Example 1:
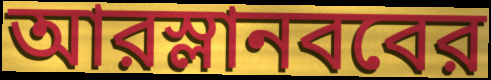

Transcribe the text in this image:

আরস্লানববের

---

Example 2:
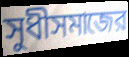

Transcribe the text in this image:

সুধীসমাজের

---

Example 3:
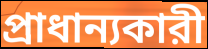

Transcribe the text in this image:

প্রাধান্যকারী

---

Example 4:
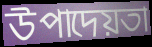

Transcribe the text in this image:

উপাদেয়তা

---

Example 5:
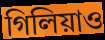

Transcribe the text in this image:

গিলিয়াও